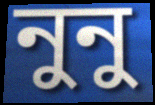
নুনু